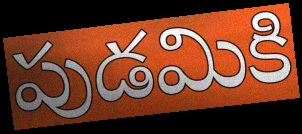
పుడమికి